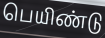
பெயிண்டு